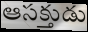
ఆసక్తుడు